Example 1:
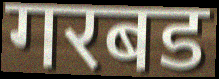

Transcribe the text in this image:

गरबड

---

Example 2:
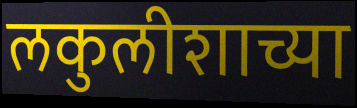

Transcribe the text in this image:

लकुलीशाच्या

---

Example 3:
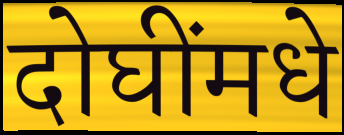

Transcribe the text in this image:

दोघींमधे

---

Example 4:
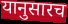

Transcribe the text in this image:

यानुसारच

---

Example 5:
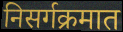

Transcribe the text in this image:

निसर्गक्रमात